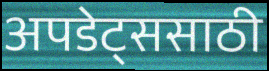
अपडेट्ससाठी